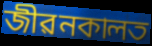
জীৱনকালত